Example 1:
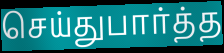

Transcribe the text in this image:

செய்துபார்த்த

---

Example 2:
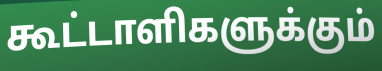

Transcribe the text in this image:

கூட்டாளிகளுக்கும்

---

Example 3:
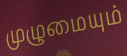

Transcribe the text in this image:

முழுமையும்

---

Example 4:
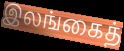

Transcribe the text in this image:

இலங்கைத்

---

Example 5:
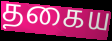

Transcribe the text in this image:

தகைய